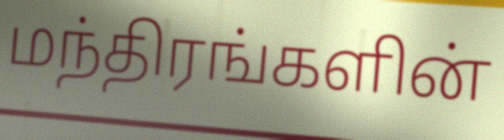
மந்திரங்களின்